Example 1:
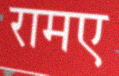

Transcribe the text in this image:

रामए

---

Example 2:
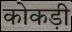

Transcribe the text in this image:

कोकड़ी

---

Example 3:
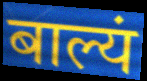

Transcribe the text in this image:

बाल्यं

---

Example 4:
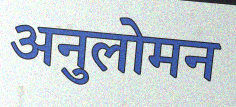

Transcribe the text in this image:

अनुलोमन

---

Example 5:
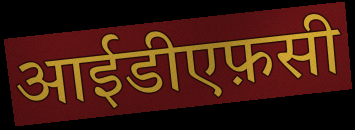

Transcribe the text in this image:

आईडीएफ़सी